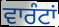
ਵਾਰੰਟਾਂ